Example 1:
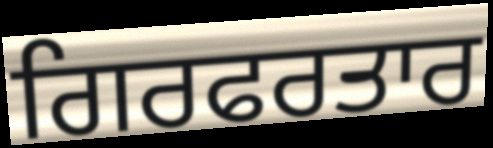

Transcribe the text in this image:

ਗਿਰਫਰਤਾਰ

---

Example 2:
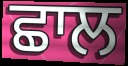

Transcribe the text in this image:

ਛਾਲ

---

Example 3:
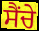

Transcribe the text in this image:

ਸੈਂਚੇ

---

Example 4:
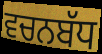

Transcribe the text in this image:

ਵਚਨਬੱਧ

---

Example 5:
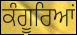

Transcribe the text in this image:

ਕੰਗੂਰਿਆਂ